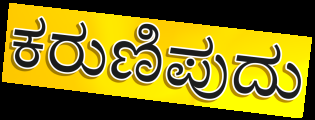
ಕರುಣಿಪುದು